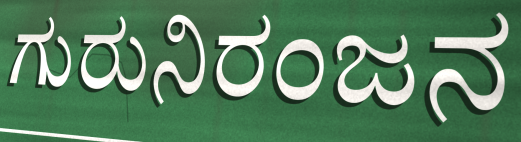
ಗುರುನಿರಂಜನ